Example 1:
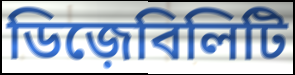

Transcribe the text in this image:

ডিজ়েবিলিটি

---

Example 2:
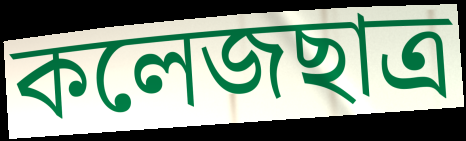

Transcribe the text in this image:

কলেজছাত্র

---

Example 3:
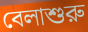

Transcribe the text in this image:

বেলাশুরু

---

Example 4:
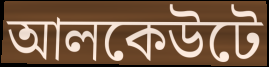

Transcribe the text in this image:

আলকেউটে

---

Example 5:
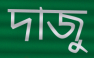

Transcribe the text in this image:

দাজু